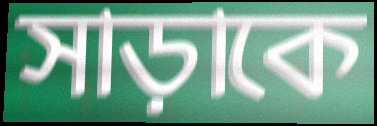
সাড়াকে